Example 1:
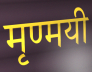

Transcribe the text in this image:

मृण्मयी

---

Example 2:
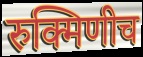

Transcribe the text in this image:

रुक्मिणीच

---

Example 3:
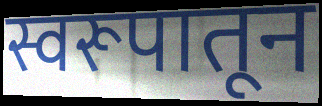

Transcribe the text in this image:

स्वरूपातून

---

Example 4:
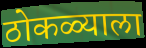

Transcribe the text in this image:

ठोकळ्याला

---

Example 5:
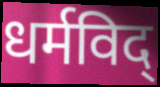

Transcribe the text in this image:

धर्मविद्